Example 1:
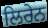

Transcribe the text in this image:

ਲਿਰੇਨ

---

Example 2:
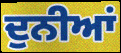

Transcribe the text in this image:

ਦੁਨੀਆਂ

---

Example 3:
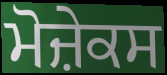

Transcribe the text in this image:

ਮੋਜ਼ੇਕਸ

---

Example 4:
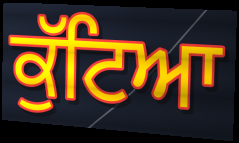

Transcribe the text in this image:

ਕੁੱਟਿਆ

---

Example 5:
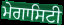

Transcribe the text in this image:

ਮੇਗਾਸਿਟੀ